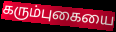
கரும்புகையை